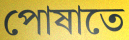
পোষাতে